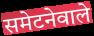
समेटनेवाले